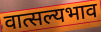
वात्सल्यभाव